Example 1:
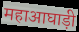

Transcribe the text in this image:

महाआघाड़ी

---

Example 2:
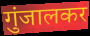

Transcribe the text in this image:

गुंजालकर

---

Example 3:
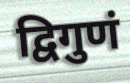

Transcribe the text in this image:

द्विगुणं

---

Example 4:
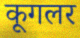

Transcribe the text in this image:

कूगलर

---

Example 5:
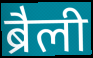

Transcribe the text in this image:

ब्रैली